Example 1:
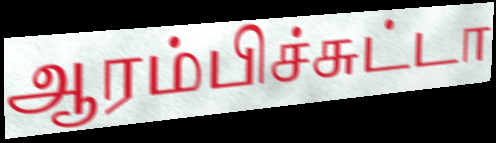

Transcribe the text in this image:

ஆரம்பிச்சுட்டா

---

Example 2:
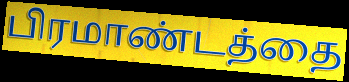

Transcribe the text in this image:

பிரமாண்டத்தை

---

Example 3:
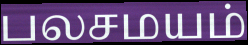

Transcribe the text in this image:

பலசமயம்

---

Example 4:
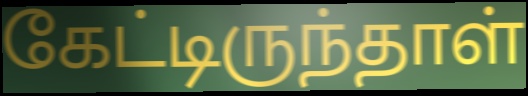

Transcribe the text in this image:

கேட்டிருந்தாள்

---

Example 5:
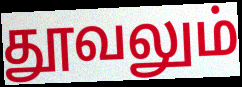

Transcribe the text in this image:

தூவலும்